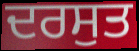
ਦਰਸੁਤ